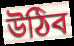
উঠিব